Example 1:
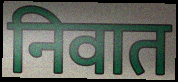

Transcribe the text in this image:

निवात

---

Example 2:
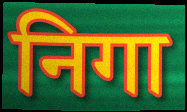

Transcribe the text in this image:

निगा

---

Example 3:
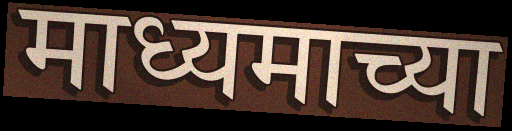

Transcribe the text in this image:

माध्यमाच्या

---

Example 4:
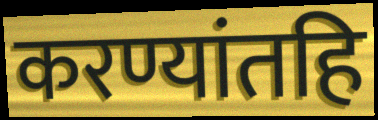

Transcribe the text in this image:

करण्यांतहि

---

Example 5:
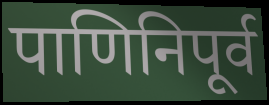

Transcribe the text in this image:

पाणिनिपूर्व